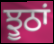
ਝੂਠਾਂ